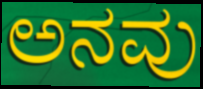
ಅನವು